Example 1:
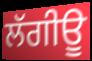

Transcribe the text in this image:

ਲੱਗੀਊ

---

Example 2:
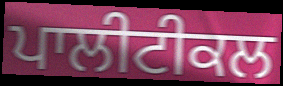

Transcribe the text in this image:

ਪਾਲੀਟੀਕਲ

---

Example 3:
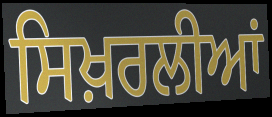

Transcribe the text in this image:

ਸਿਖ਼ਰਲੀਆਂ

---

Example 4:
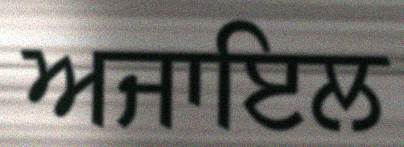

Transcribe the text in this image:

ਅਜਾਇਲ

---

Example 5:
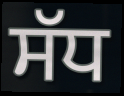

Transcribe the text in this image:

ਸੱਧ